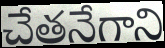
చేతనేగాని